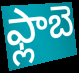
ఫ్లాబె